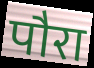
पौरा